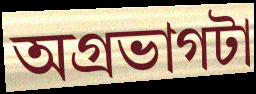
অগ্রভাগটা